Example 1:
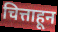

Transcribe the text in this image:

चित्ताहून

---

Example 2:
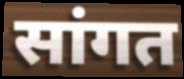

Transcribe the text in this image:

सांगत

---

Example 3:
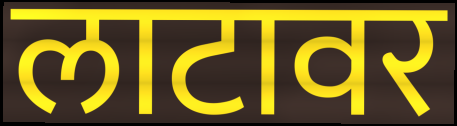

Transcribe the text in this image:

लाटावर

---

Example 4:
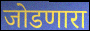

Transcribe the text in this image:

जोडणारा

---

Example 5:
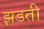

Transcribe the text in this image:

झडती